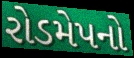
રોડમેપનો